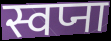
स्‍वप्‍ना